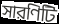
সারণিটি